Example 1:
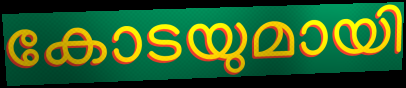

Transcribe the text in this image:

കോടയുമായി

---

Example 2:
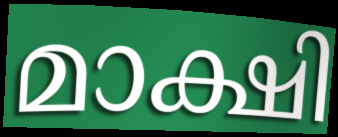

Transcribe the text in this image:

മാക്ഷി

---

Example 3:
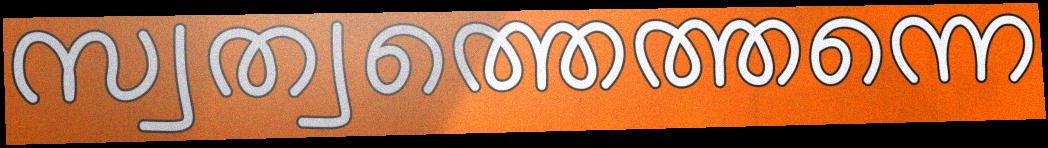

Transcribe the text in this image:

സ്വത്വത്തെത്തന്നെ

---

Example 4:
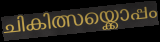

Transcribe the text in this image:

ചികിത്സയ്ക്കൊപ്പം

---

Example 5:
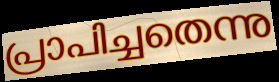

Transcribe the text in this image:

പ്രാപിച്ചതെന്നു